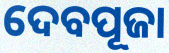
ଦେବପୂଜା